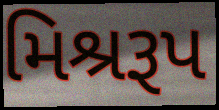
મિશ્રરૂપ